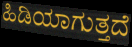
ಹಿಡಿಯಾಗುತ್ತದೆ